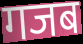
गजब